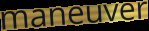
maneuver